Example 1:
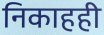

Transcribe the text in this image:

निकाहही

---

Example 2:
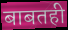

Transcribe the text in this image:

बाबतही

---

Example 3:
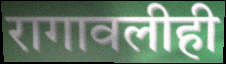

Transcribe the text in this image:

रागावलीही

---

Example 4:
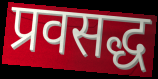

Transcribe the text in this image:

प्रवसद्ध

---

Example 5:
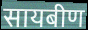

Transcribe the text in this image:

सायबीण